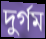
দুৰ্গম